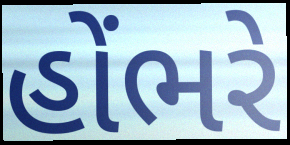
હોંભરે